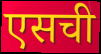
एसची